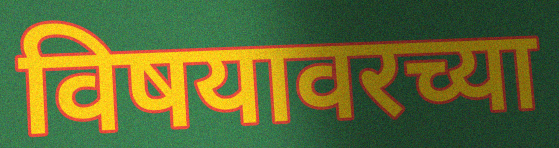
विषयावरच्या